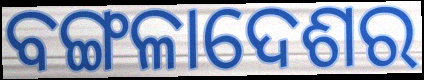
ବଙ୍ଗଳାଦେଶର